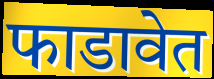
फाडावेत